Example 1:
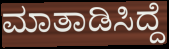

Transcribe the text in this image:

ಮಾತಾಡಿಸಿದ್ದೆ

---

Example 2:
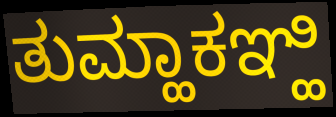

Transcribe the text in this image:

ತುಮ್ಹಾಕಞ್ಹಿ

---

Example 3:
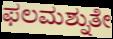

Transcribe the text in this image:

ಫಲಮಶ್ನುತೇ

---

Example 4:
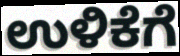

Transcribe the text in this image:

ಉಳಿಕೆಗೆ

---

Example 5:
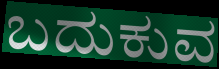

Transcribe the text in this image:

ಬದುಕುವ